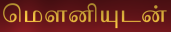
மௌனியுடன்